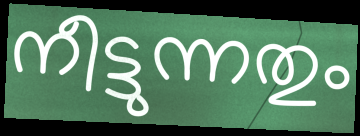
നീട്ടുന്നതും